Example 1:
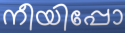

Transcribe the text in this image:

നീയിപ്പോ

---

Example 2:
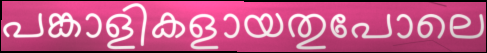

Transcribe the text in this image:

പങ്കാളികളായതുപോലെ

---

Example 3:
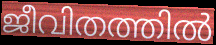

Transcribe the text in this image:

ജീവിതത്തിൽ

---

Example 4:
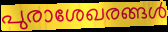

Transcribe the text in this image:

പുരാശേഖരങ്ങൾ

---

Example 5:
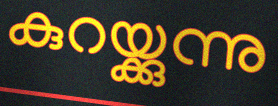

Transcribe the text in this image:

കുറയ്ക്കുന്നു